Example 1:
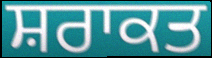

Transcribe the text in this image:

ਸ਼ਰਾਕਤ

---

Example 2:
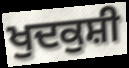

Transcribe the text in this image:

ਖੁਦਕੁਸ਼ੀ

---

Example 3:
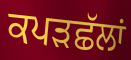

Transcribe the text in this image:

ਕਪੜਛੱਲਾਂ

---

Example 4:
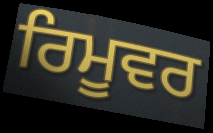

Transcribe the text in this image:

ਰਿਮੂਵਰ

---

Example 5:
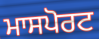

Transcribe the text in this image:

ਮਾਸਪੋਰਟ